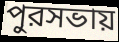
পুরসভায়